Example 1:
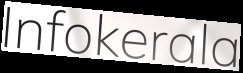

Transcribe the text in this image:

Infokerala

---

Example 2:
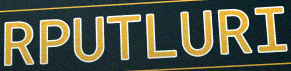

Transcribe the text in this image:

RPUTLURI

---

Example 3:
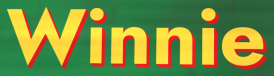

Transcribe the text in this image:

Winnie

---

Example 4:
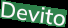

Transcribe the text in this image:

Devito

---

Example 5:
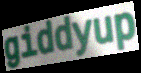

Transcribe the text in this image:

giddyup